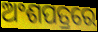
ଅଂଶପତ୍ରରେ